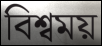
বিশ্বময়